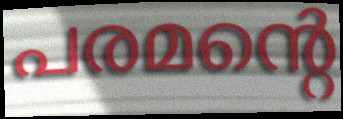
പരമന്റെ